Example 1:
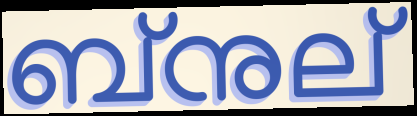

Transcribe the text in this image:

ബ്നുല്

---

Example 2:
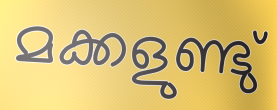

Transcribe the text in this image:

മക്കളുണ്ടു്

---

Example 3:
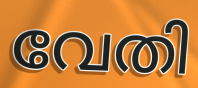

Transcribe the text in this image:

വേതി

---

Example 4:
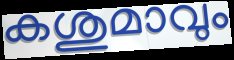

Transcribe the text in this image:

കശുമാവും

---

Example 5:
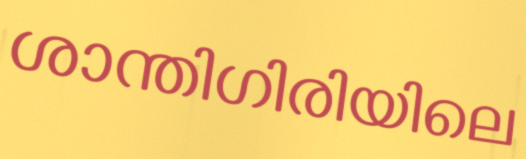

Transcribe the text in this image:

ശാന്തിഗിരിയിലെ